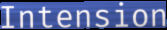
Intension